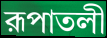
রূপাতলী